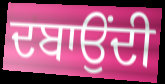
ਦਬਾਉਂਦੀ